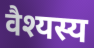
वैश्यस्य